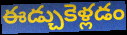
ఈడ్చుకెళ్లడం